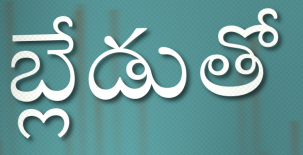
బ్లేడుతో